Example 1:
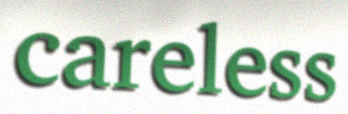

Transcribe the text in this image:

careless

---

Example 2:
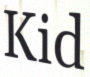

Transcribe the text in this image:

Kid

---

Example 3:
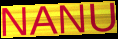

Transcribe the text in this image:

NANU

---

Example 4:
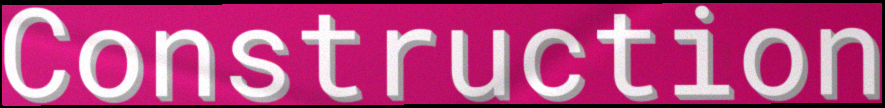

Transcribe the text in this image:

Construction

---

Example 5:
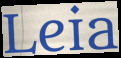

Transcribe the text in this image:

Leia